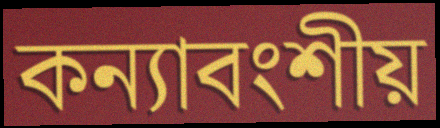
কন্যাবংশীয়